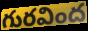
గురవింద